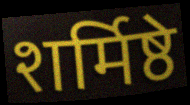
शर्मिष्ठे